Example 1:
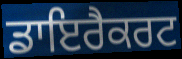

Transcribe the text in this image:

ਡਾਇਰੈਕਰਟ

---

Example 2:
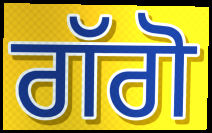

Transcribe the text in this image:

ਗੱਗੋ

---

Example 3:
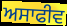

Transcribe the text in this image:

ਅਸਾਫੀਵ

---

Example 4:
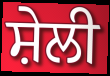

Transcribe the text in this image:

ਸ਼ੇਲੀ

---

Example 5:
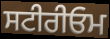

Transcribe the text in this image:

ਸਟੀਰੀਓਮ